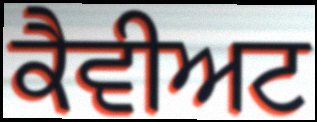
ਕੈਵੀਅਟ